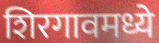
शिरगावमध्ये